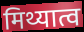
मिथ्यात्व